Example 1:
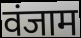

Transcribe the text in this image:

वंजाम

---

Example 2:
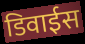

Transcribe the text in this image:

डिवाईस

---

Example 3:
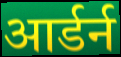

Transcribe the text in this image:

आर्डर्न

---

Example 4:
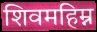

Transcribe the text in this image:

शिवमहिम्न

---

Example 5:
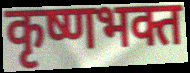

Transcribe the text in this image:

कृष्णभक्त